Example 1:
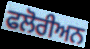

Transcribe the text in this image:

ਫਲੋਰੀਅਨ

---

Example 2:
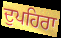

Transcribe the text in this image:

ਦੁਪਹਿਰਾ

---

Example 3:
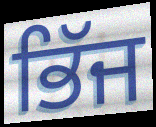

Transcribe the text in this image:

ਭਿੱਜ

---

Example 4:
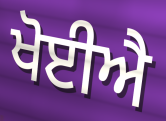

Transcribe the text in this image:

ਖੋਈਐ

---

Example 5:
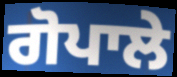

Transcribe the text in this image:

ਗੋਪਾਲੇ